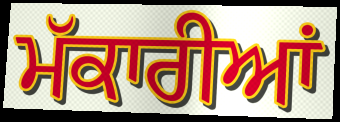
ਮੱਕਾਰੀਆਂ